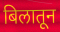
बिलातून